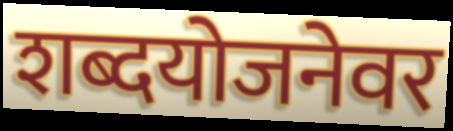
शब्दयोजनेवर